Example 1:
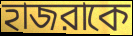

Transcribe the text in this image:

হাজরাকে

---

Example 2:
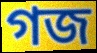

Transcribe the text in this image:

গজ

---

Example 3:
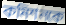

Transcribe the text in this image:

কমিশনকে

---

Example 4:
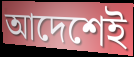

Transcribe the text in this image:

আদেশেই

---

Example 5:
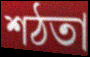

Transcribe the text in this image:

শঠতা